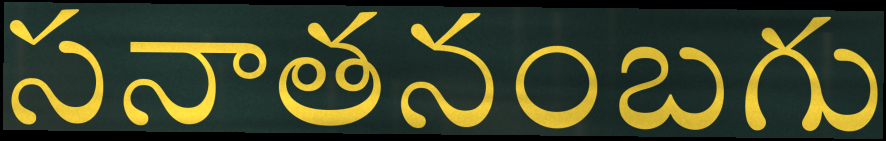
సనాతనంబగు